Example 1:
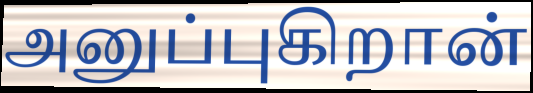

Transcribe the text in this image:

அனுப்புகிறான்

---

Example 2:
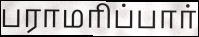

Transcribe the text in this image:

பராமரிப்பார்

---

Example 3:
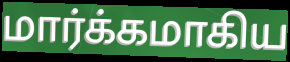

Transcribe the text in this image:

மார்க்கமாகிய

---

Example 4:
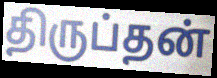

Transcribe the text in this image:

திருப்தன்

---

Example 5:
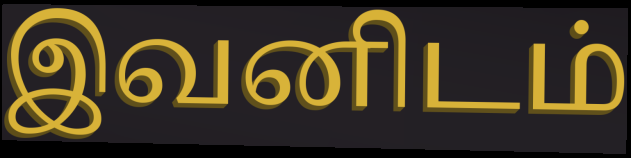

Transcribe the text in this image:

இவனிடம்